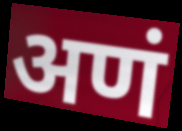
अणं